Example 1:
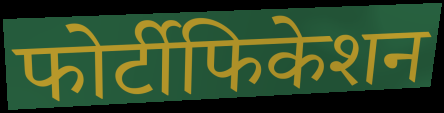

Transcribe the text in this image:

फोर्टीफिकेशन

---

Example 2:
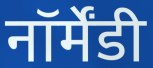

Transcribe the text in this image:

नॉर्मेंडी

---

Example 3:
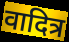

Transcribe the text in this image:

वादित्र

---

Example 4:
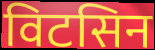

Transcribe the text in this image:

विटसिन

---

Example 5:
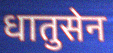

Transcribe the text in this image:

धातुसेन